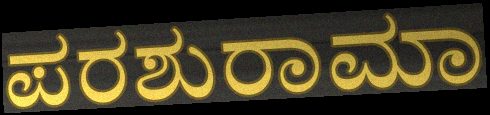
ಪರಶುರಾಮಾ